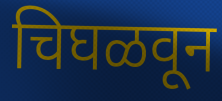
चिघळवून